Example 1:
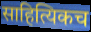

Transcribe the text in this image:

साहित्यिकच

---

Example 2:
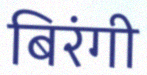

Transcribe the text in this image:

बिरंगी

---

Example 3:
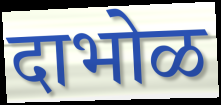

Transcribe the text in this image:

दाभोळ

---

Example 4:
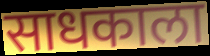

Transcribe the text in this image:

साधकाला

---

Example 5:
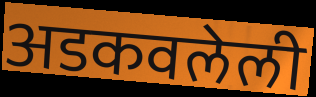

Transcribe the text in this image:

अडकवलेली